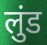
लुंड